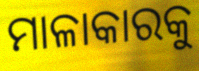
ମାଳାକାରକୁ